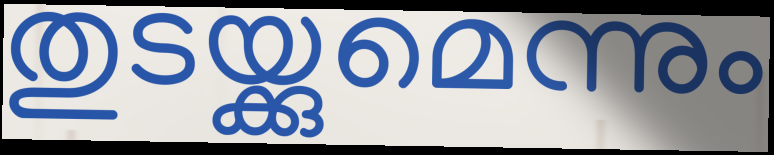
തുടയ്ക്കുമെന്നും